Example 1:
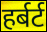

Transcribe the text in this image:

हर्बर्ट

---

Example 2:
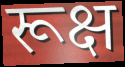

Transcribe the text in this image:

रूक्ष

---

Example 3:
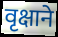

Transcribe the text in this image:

वृक्षाने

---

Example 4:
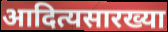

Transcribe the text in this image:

आदित्यसारख्या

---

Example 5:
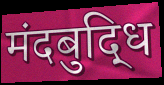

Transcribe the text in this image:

मंदबुद्धि